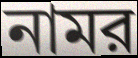
নামর